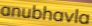
anubhavla